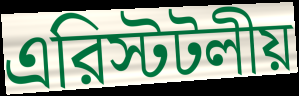
এরিস্টটলীয়